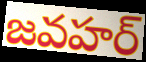
జవహర్